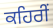
ਕਹਿਰੀਂ